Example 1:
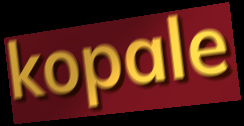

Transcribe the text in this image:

kopale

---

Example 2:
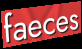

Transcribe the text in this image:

faeces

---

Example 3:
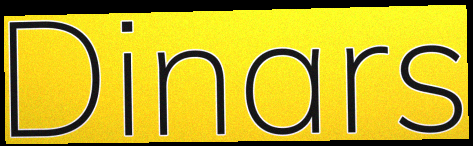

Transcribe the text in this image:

Dinars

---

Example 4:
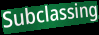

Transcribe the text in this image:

Subclassing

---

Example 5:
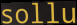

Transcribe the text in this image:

sollu